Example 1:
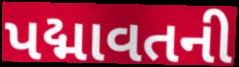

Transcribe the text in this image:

પદ્માવતની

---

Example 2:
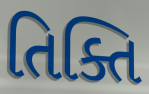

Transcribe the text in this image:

તિક્તિ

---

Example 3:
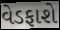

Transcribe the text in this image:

વેડફાશે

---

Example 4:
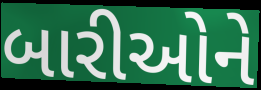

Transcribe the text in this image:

બારીઓને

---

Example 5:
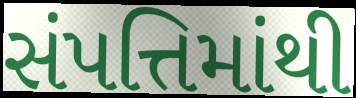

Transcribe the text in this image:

સંપત્તિમાંથી